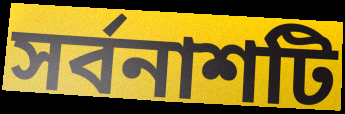
সর্বনাশটি